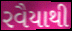
રવૈયાથી